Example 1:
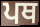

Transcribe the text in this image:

ਪਥ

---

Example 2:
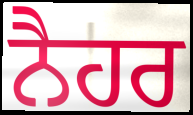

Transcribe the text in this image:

ਨੈਹਰ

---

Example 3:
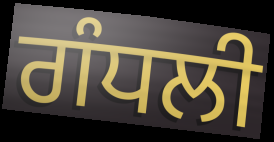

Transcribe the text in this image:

ਗੰਧਲੀ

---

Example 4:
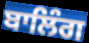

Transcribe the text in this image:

ਬਾਲਿੰਗ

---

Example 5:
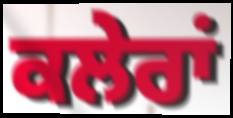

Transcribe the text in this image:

ਕਲੇਰਾਂ